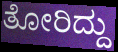
ತೋರಿದ್ದು